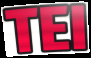
TEI